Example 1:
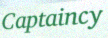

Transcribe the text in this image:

Captaincy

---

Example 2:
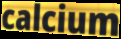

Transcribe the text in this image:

calcium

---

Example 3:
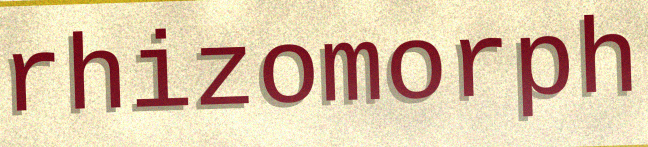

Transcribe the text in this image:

rhizomorph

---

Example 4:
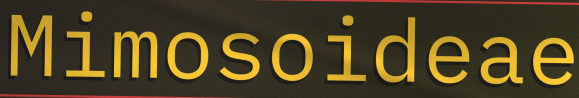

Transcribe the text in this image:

Mimosoideae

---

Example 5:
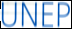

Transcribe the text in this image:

UNEP